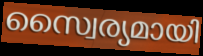
സ്വൈര്യമായി